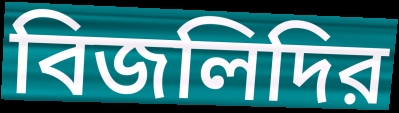
বিজলিদির